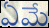
ఏమే